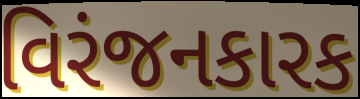
વિરંજનકારક